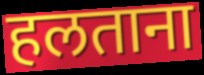
हलताना